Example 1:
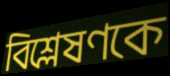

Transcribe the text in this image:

বিশ্লেষণকে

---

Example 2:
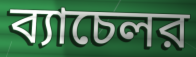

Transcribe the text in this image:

ব্যাচেলর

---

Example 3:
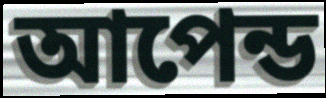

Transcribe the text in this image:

আপেন্ড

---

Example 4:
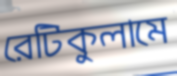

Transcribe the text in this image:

রেটিকুলামে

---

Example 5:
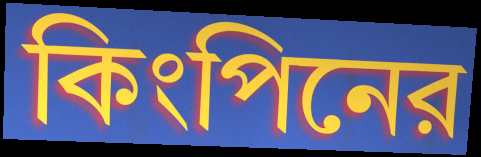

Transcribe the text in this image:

কিংপিনের